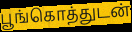
பூங்கொத்துடன்